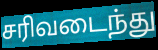
சரிவடைந்து